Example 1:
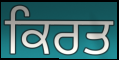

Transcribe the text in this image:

ਕਿਰਤ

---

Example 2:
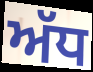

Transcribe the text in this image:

ਅੱਧ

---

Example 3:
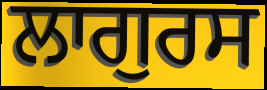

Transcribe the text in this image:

ਲਾਗੁਰਸ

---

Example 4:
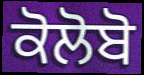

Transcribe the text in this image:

ਕੋਲੋਬੋ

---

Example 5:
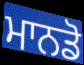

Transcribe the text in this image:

ਮਾਨਡੋ